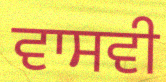
ਵਾਸਵੀ